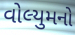
વોલ્યુમનો